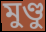
মুণ্ডু